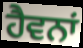
ਹੈਵਨਾਂ